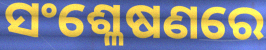
ସଂଶ୍ଳେଷଣରେ